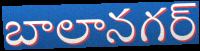
బాలానగర్